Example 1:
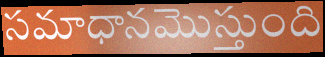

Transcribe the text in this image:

సమాధానమొస్తుంది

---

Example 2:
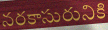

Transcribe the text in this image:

నరకాసురునికి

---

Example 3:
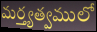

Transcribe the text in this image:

మర్త్యత్వములో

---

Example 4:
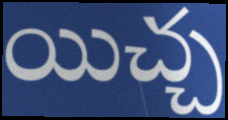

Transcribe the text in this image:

యిచ్చ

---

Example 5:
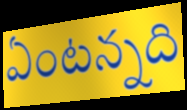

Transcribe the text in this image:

ఏంటన్నది